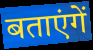
बताएंगें